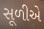
સૂળીએ